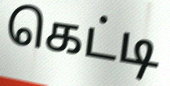
கெட்டி